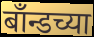
बाँन्डच्या